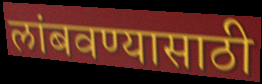
लांबवण्यासाठी